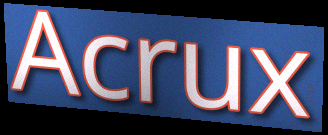
Acrux